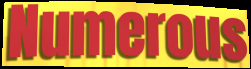
Numerous